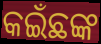
କଇଁଛଙ୍କ